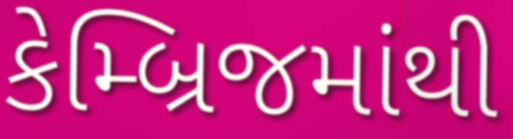
કેમ્બ્રિજમાંથી